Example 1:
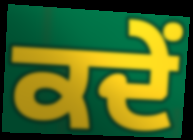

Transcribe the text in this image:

ਕਦੇਂ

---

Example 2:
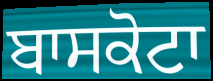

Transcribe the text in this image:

ਬਾਸਕੋਟਾ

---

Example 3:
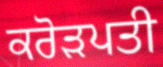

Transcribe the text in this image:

ਕਰੋੜਪਤੀ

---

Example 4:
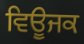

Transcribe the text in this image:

ਵਿਊਜਕ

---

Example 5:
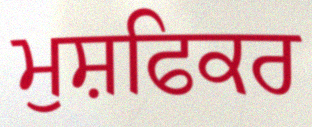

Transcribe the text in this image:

ਮੁਸ਼ਫਿਕਰ